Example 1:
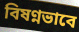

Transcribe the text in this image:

বিষণ্নভাবে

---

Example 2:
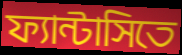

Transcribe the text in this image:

ফ্যান্টাসিতে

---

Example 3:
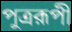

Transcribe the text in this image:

পুত্ররূপী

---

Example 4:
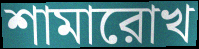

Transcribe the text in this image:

শামারোখ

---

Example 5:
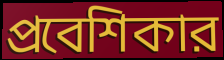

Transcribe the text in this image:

প্রবেশিকার